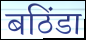
बठिंडा